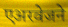
एअरवेजने